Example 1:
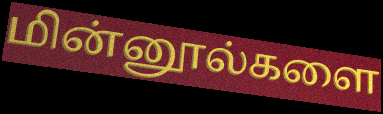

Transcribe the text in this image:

மின்னூல்களை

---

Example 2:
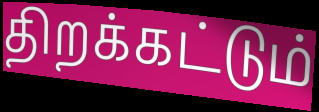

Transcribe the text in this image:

திறக்கட்டும்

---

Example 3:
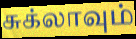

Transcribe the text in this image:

சுக்லாவும்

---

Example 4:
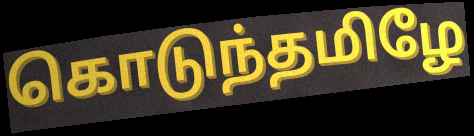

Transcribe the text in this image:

கொடுந்தமிழே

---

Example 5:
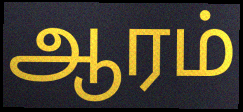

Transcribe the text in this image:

ஆரம்